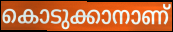
കൊടുക്കാനാണ്